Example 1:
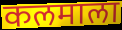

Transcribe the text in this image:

कलमाला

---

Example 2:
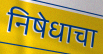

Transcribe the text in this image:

निषेधाचा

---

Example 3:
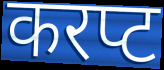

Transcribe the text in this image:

करप्ट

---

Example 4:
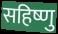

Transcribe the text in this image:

सहिष्णु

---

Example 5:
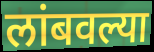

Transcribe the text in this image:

लांबवल्या